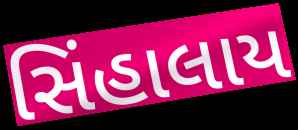
સિંહાલાય